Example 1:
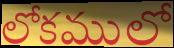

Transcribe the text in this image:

లోకములో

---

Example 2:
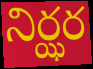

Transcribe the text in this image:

నిర్ఝర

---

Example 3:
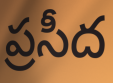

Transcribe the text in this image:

ప్రసీద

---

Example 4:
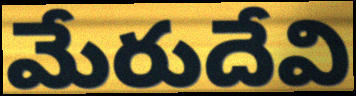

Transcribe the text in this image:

మేరుదేవి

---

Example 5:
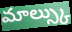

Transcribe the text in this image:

మాల్స్కు